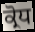
ਕ੍ਰੋਧ